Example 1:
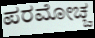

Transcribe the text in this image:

ಪರಮೋಚ್ಚ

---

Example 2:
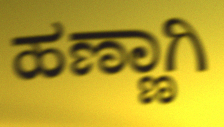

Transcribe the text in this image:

ಹಣ್ಣಾಗಿ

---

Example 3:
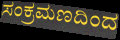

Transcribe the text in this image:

ಸಂಕ್ರಮಣದಿಂದ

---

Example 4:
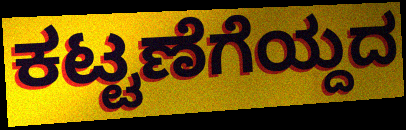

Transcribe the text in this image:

ಕಟ್ಟಣೆಗೆಯ್ದದ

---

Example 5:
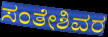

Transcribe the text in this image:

ಸಂತೇಶಿವರ